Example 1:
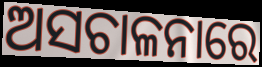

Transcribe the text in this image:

ଅସଚାଳନାରେ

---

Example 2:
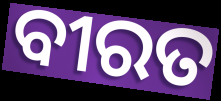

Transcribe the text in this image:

ବୀରତ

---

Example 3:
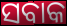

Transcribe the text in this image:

ସବାକ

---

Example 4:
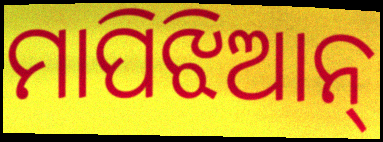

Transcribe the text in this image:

ମାପିଝିଆନ୍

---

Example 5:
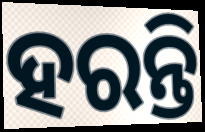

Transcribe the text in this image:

ହରନ୍ତି